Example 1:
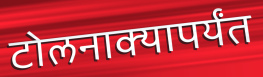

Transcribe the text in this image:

टोलनाक्यापर्यंत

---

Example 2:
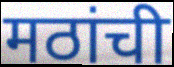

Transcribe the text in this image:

मठांची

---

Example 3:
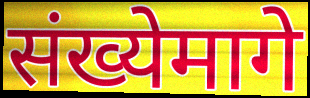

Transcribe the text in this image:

संख्येमागे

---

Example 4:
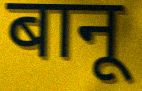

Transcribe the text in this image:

बानू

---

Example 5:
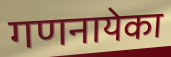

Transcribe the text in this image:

गणनायेका